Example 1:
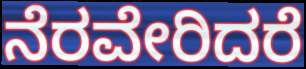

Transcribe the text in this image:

ನೆರವೇರಿದರೆ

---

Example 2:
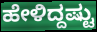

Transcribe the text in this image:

ಹೇಳಿದ್ದಷ್ಟು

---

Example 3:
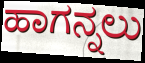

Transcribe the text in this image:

ಹಾಗನ್ನಲು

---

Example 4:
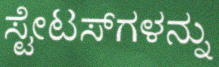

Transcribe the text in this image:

ಸ್ಟೇಟಸ್‌ಗಳನ್ನು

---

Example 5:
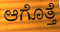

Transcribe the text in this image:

ಆಗೊತ್ತೆ